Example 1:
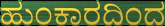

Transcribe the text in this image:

ಹುಂಕಾರದಿಂದ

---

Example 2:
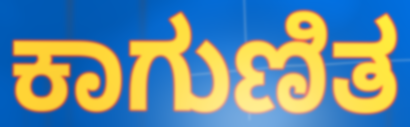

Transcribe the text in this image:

ಕಾಗುಣಿತ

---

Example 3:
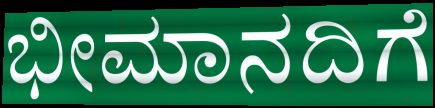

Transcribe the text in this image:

ಭೀಮಾನದಿಗೆ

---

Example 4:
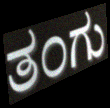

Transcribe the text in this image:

ತಂಗು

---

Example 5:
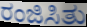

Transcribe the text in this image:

ರಂಜಿಸಿತು